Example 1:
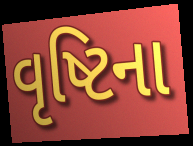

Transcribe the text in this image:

વૃષ્ટિના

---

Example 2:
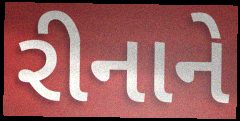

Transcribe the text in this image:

રીનાને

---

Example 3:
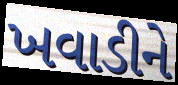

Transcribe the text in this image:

ખવાડીને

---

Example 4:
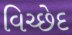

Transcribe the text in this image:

વિચ્છેદ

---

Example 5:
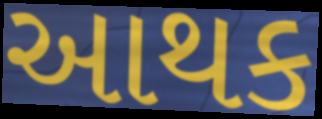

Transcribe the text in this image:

આથક